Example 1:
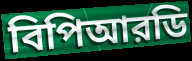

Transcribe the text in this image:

বিপিআরডি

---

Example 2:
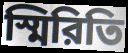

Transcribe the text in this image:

স্মিরিতি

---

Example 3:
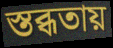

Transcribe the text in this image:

স্তব্ধতায়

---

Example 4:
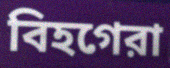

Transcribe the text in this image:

বিহগেরা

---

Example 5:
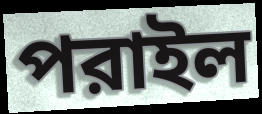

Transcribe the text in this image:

পরাইল